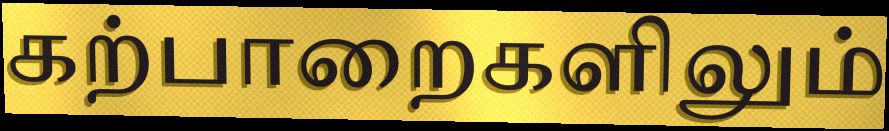
கற்பாறைகளிலும்